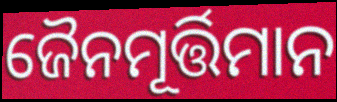
ଜୈନମୂର୍ତ୍ତିମାନ